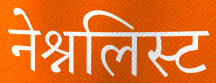
नेश्नलिस्ट